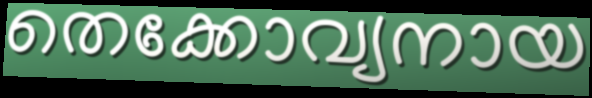
തെക്കോവ്യനായ